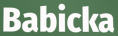
Babicka